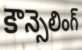
కౌన్సెలింగ్